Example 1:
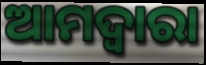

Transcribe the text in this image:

ଆମଦ୍ୱାରା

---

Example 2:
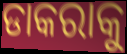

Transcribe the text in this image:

ଡାକରାକୁ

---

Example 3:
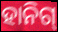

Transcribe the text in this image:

ହାନିଗ୍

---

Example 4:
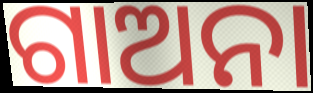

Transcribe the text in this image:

ଗାଅନା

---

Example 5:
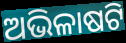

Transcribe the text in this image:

ଅଭିଳାଷଟି